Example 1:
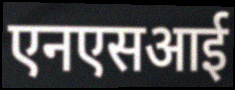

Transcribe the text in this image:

एनएसआई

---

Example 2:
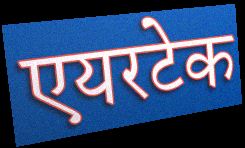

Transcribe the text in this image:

एयरटेक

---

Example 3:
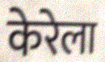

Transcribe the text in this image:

केरेला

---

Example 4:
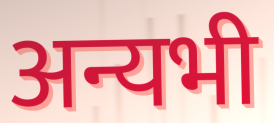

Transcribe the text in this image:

अन्यभी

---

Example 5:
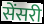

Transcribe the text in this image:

सेंसरी